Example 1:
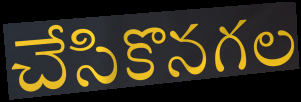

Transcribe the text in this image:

చేసికొనగల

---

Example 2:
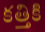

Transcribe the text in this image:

కత్తికి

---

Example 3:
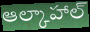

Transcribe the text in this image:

ఆల్కాహాల్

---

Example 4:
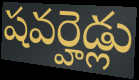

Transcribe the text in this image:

షవర్హెడ్లు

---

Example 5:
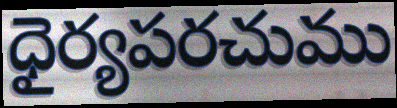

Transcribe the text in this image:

ధైర్యపరచుము